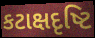
કટાક્ષદૃષ્ટિ